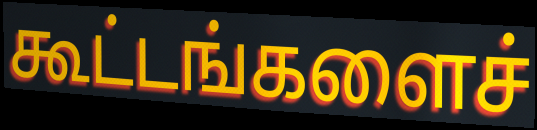
கூட்டங்களைச்